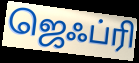
ஜெஃப்ரி